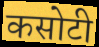
कसोटी